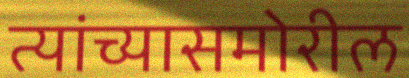
त्यांच्यासमोरील